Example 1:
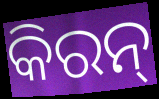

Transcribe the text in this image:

କିରନ୍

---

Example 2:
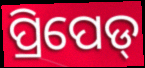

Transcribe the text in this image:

ପ୍ରିପେଡ୍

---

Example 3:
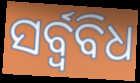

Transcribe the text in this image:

ସର୍ବ୍ବବିଧ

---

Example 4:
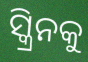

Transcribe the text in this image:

ସ୍କ୍ରିନକୁ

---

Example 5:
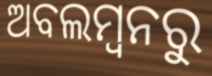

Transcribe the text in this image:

ଅବଲମ୍ବନରୁ